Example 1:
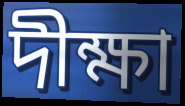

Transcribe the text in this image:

দীক্ষা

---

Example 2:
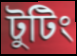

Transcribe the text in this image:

টুটিং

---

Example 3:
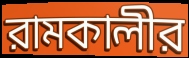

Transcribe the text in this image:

রামকালীর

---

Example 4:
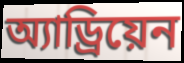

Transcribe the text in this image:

অ্যাড্রিয়েন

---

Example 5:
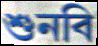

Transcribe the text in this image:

শুনবি